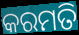
କରମତି